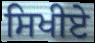
ਸਿਖੀਏ